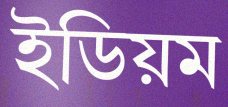
ইডিয়ম